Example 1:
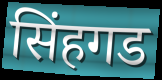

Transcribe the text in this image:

सिंहगड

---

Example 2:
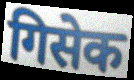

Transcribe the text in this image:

गिसेक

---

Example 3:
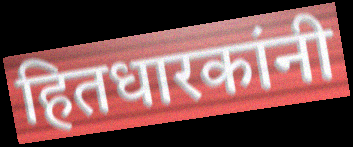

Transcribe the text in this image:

हितधारकांनी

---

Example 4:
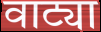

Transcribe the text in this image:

वाट्या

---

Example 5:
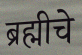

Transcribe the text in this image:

ब्रह्मीचे